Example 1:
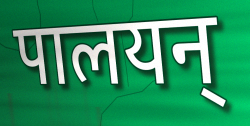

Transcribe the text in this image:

पालयन्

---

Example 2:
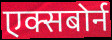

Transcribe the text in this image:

एक्सबोर्न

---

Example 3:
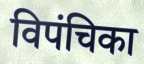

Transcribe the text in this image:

विपंचिका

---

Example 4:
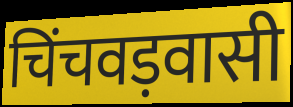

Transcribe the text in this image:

चिंचवड़वासी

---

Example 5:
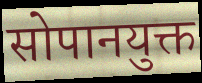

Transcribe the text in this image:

सोपानयुक्त